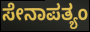
ಸೇನಾಪತ್ಯಂ